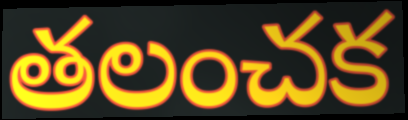
తలంచక